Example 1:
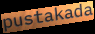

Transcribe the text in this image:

pustakada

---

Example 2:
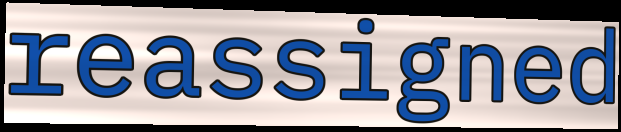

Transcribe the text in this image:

reassigned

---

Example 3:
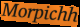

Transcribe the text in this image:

Morpichh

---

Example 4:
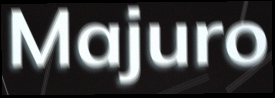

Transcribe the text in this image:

Majuro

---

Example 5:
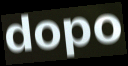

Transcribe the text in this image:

dopo